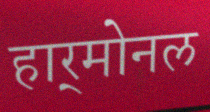
हार्मोनल